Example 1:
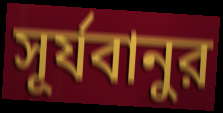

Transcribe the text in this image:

সূর্যবানুর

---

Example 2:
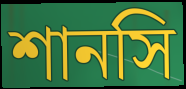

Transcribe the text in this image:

শানসি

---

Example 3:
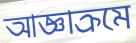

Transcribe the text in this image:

আজ্ঞাক্রমে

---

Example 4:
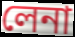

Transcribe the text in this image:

লেনা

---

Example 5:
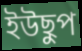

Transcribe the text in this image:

ইউছুপ